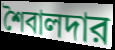
শৈবালদার